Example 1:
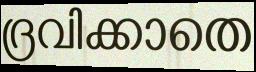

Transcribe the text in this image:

ദ്രവിക്കാതെ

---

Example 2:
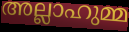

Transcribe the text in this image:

അല്ലാഹുമ്മ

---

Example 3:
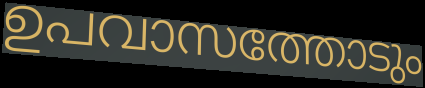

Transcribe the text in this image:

ഉപവാസത്തോടും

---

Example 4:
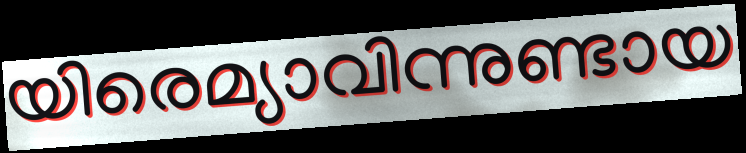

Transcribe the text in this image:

യിരെമ്യാവിന്നുണ്ടായ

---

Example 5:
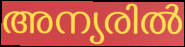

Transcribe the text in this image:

അന്യരിൽ